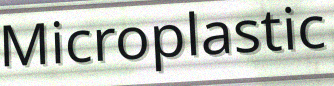
Microplastic